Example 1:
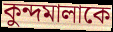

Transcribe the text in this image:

কুন্দমালাকে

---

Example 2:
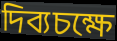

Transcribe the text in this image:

দিব্যচক্ষে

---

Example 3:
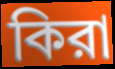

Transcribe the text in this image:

কিরা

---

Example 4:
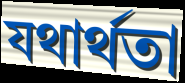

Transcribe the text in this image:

যথার্থতা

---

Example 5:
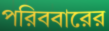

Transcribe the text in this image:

পরিববারের